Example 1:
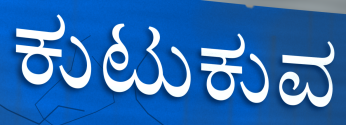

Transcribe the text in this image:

ಕುಟುಕುವ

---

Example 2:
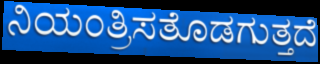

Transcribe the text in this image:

ನಿಯಂತ್ರಿಸತೊಡಗುತ್ತದೆ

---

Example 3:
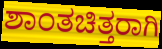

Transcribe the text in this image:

ಶಾಂತಚಿತ್ತರಾಗಿ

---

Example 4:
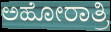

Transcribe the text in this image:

ಅಹೋರಾತ್ರಿ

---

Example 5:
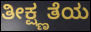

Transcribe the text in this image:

ತೀಕ್ಷ್ಣತೆಯ